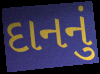
દાનનું